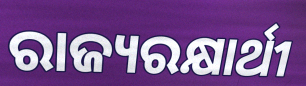
ରାଜ୍ୟରକ୍ଷାର୍ଥୀ